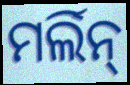
ମର୍ଲିନ୍